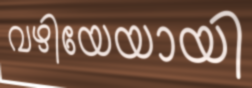
വഴിയേയായി